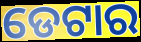
ଡେଟାର